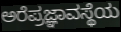
ಅರೆಪ್ರಜ್ಞಾವಸ್ಥೆಯ